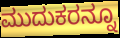
ಮುದುಕರನ್ನೂ